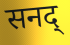
सनद्